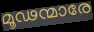
മൂഢന്മാരേ